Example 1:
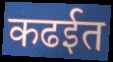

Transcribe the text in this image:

कढईत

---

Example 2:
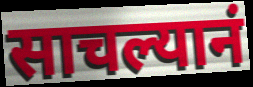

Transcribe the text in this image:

साचल्यानं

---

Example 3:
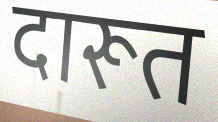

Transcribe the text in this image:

दारूत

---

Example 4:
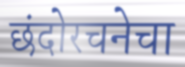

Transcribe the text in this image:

छंदोरचनेचा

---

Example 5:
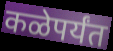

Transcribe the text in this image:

कळेपर्यंत